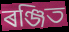
ৰঞ্জিত